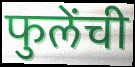
फुलेंची